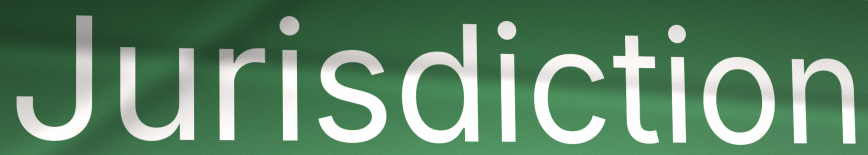
Jurisdiction